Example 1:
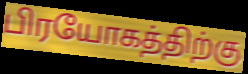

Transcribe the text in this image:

பிரயோகத்திற்கு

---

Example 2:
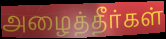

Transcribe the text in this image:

அழைத்தீர்கள்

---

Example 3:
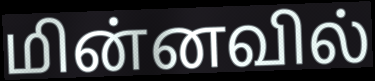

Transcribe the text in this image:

மின்னவில்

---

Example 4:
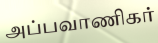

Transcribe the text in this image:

அப்பவாணிகர்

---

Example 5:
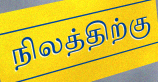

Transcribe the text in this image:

நிலத்திற்கு